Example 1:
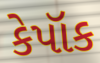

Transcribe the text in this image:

કેપૉક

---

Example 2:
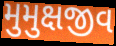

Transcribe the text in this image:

મુમુક્ષજીવ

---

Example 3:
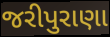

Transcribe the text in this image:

જરીપુરાણા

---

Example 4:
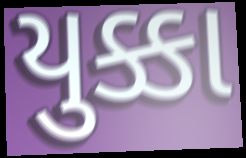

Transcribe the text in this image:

યુક્કા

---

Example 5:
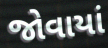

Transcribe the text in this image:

જોવાયાં